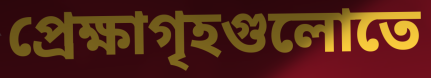
প্রেক্ষাগৃহগুলোতে